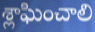
శ్లాఘించాలి